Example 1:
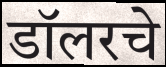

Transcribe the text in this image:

डॉलरचे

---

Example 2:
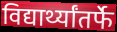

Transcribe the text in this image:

विद्यार्थ्यांतर्फे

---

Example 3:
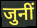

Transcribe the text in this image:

जुनीं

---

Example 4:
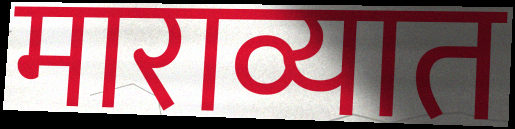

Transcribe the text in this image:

माराव्यात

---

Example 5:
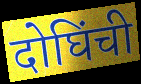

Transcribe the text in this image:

दोघिंची